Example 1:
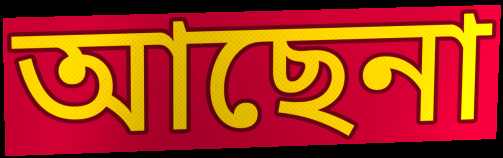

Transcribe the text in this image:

আছেনা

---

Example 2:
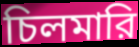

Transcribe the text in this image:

চিলমারি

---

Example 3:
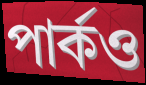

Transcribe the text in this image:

পার্কও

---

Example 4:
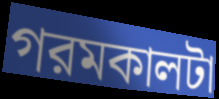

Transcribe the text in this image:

গরমকালটা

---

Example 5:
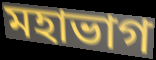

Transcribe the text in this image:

মহাভাগ